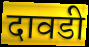
दावडी